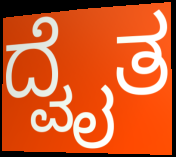
ದ್ವೈತ